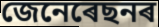
জেনেৰেছনৰ